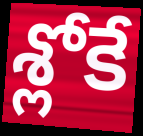
శ్లోకే